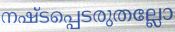
നഷ്ടപ്പെടരുതല്ലോ